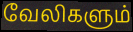
வேலிகளும்